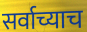
सर्वाच्याच